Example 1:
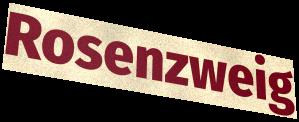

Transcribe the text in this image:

Rosenzweig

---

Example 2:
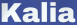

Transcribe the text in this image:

Kalia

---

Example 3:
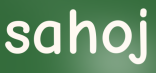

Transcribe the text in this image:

sahoj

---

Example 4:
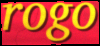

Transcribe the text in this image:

rogo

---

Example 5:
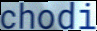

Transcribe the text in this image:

chodi